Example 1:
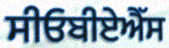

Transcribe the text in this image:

ਸੀਓਬੀਏਐੱਸ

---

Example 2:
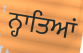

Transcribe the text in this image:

ਨ੍ਹਾਤਿਆਂ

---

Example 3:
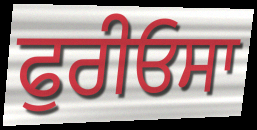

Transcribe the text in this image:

ਫੁਰੀਓਸਾ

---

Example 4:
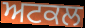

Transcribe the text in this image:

ਅਟਕਲ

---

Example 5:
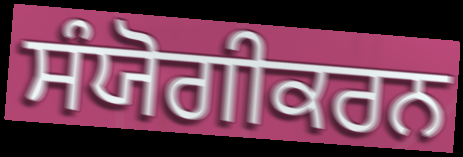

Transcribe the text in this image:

ਸੰਯੋਗੀਕਰਨ